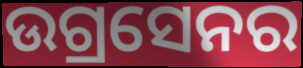
ଉଗ୍ରସେନର